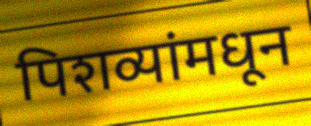
पिशव्यांमधून